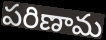
పరిణామ